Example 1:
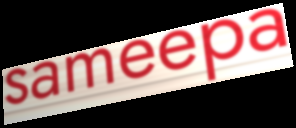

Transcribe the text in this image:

sameepa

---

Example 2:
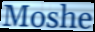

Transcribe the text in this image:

Moshe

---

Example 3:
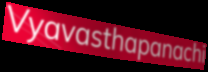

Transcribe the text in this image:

Vyavasthapanachi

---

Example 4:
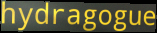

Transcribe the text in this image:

hydragogue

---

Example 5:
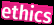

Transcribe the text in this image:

ethics